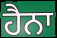
ਹੈਨਾ